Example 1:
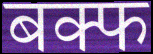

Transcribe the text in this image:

बक्फ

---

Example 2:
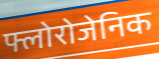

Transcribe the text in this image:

फ्लोरोजेनिक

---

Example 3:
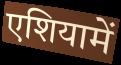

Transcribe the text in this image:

एशियामें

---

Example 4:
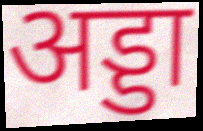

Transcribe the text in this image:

अड्डा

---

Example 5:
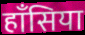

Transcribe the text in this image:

हाँसिया